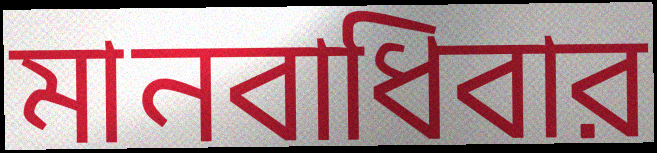
মানবাধিবার